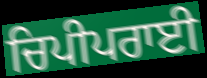
ਚਿਪੀਪਰਾਈ